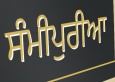
ਸੰਮੀਪੁਰੀਆ